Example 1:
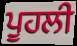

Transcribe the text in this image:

ਪੂਹਲੀ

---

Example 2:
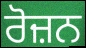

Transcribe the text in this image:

ਰੋਜ਼ਨ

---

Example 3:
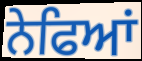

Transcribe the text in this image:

ਨੇਫਿਆਂ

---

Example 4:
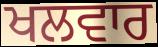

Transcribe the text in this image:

ਖਲਵਾਰ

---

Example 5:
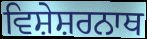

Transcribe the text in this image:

ਵਿਸ਼ੇਸ਼ਰਨਾਥ